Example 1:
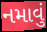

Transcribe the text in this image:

નમાવું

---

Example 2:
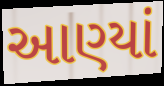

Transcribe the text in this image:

આણ્યાં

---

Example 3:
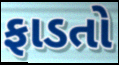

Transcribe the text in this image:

ફાડતો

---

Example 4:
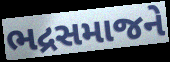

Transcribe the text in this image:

ભદ્રસમાજને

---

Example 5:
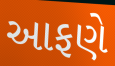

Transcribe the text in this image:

આફણે